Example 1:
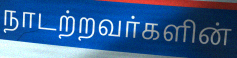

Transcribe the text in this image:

நாடற்றவர்களின்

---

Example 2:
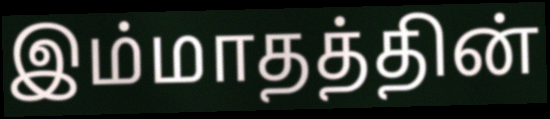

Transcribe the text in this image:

இம்மாதத்தின்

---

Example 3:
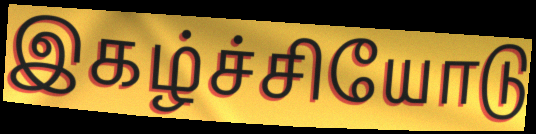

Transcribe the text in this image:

இகழ்ச்சியோடு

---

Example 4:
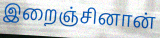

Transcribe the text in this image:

இறைஞ்சினான்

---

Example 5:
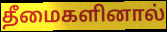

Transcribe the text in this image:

தீமைகளினால்